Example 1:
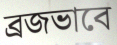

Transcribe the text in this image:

ব্রজভাবে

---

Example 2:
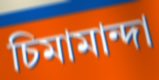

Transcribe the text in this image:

চিমামান্দা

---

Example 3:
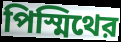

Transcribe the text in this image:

পিস্মিথের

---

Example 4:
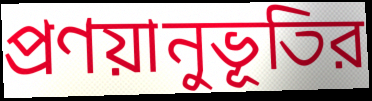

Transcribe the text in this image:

প্রণয়ানুভূতির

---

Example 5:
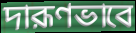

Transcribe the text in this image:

দারূণভাবে